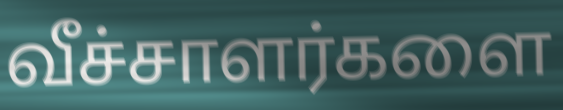
வீச்சாளர்களை